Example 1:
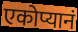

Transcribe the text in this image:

एकोप्यानं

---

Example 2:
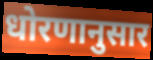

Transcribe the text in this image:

धोरणानुसार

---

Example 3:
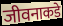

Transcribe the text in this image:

जीवनाकडे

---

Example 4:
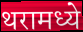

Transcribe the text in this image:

थरामध्ये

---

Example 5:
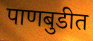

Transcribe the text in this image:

पाणबुडीत